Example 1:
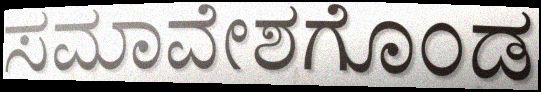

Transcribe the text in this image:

ಸಮಾವೇಶಗೊಂಡ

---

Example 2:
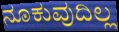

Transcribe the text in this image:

ನೂಕುವುದಿಲ್ಲ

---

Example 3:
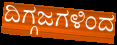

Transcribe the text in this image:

ದಿಗ್ಗಜಗಳಿಂದ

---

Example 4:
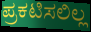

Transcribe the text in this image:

ಪ್ರಕಟಿಸಲಿಲ್ಲ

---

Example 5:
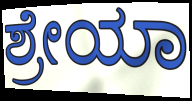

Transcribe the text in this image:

ಶ್ರೇಯಾ